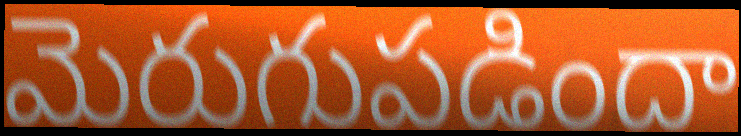
మెరుగుపడిందా